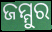
ଜମ୍ମୁର